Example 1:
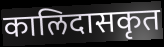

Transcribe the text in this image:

कालिदासकृत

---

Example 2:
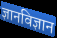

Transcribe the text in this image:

ज्ञानविज्ञान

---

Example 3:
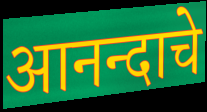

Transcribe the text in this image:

आनन्दाचे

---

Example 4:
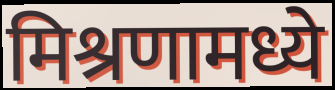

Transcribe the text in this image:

मिश्रणामध्ये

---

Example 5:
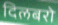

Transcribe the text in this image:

दिलबरो